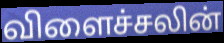
விளைச்சலின்